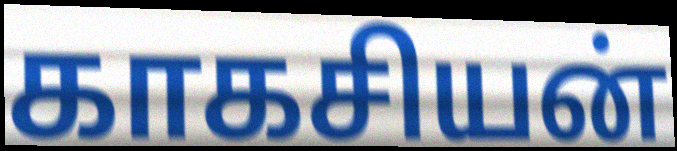
காகசியன்